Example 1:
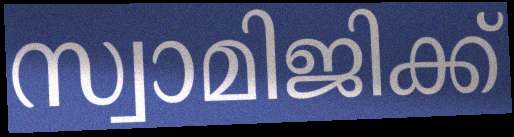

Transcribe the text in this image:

സ്വാമിജിക്ക്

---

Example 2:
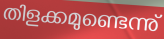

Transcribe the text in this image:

തിളക്കമുണ്ടെന്നു്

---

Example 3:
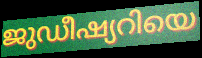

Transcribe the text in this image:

ജുഡീഷ്യറിയെ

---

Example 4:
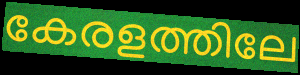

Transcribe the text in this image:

കേരളത്തിലേ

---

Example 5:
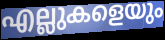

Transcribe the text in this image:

എല്ലുകളെയും